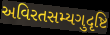
અવિરતસમ્યગુદૃષ્ટિ